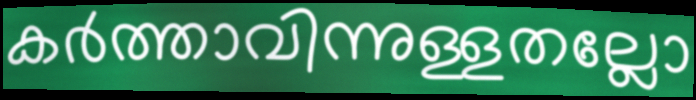
കർത്താവിന്നുള്ളതല്ലോ